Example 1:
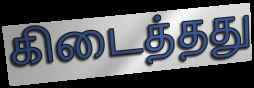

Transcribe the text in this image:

கிடைத்தது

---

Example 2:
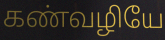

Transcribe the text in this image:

கண்வழியே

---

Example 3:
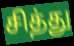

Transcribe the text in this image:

சித்து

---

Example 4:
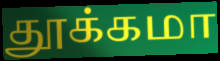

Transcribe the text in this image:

தூக்கமா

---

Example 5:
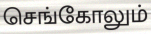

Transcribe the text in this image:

செங்கோலும்